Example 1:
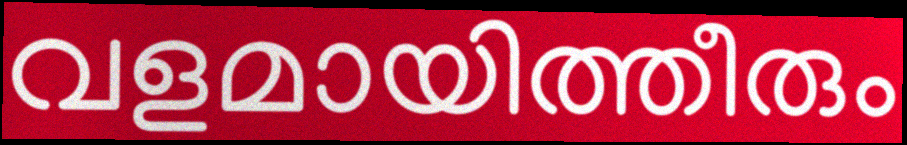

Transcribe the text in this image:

വളമായിത്തീരും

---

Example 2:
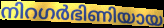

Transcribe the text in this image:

നിറഗർഭിണിയായ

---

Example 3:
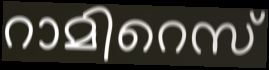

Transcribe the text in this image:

റാമിറെസ്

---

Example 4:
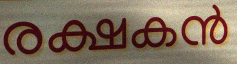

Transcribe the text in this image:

രക്ഷകൻ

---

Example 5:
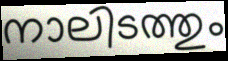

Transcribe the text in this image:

നാലിടത്തും